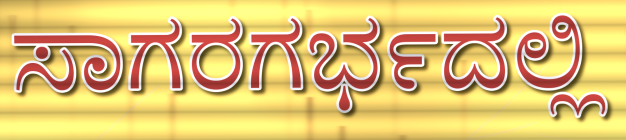
ಸಾಗರಗರ್ಭದಲ್ಲಿ